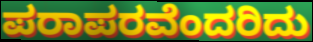
ಪರಾಪರವೆಂದರಿದು